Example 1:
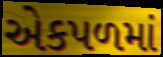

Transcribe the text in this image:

એકપળમાં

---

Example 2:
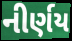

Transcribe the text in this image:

નીર્ણય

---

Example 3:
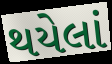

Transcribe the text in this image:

થયેલાં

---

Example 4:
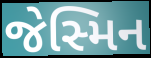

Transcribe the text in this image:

જેસ્મિન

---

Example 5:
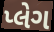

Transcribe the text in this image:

પ્લેગ